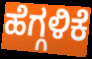
ಹೆಗ್ಗಳಿಕೆ